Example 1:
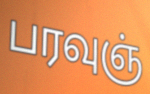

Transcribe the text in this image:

பரவுஞ்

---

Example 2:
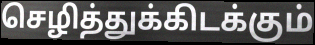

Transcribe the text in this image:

செழித்துக்கிடக்கும்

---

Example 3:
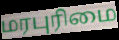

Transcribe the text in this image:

மரபுரிமை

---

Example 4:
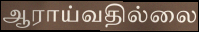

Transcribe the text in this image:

ஆராய்வதில்லை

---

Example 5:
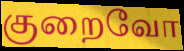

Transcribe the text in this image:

குறைவோ